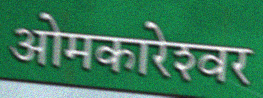
ओमकारेश्वर